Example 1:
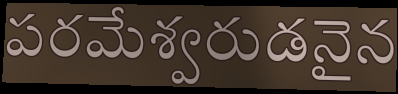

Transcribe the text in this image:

పరమేశ్వరుడనైన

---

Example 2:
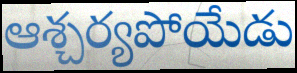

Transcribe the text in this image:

ఆశ్చర్యపోయేడు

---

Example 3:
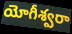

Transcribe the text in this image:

యోగీశ్వరా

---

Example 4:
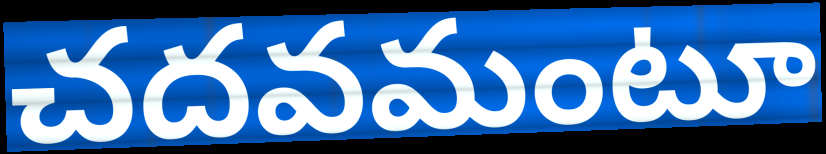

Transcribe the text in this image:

చదవమంటూ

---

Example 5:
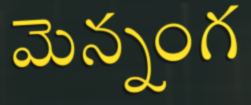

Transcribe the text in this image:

మెన్నంగ